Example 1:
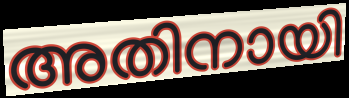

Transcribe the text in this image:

അതിനായി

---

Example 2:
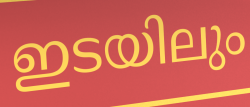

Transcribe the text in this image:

ഇടയിലും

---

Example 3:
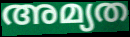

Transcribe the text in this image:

അമ്യത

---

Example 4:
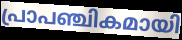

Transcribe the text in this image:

പ്രാപഞ്ചികമായി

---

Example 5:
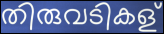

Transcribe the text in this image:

തിരുവടികള്